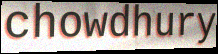
chowdhury